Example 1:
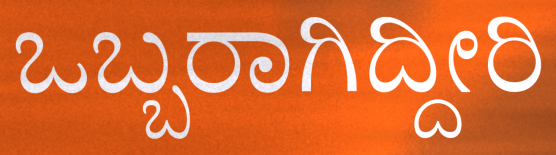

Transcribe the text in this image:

ಒಬ್ಬರಾಗಿದ್ದೀರಿ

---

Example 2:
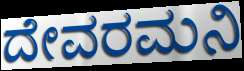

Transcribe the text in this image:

ದೇವರಮನಿ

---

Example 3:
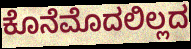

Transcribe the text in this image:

ಕೊನೆಮೊದಲಿಲ್ಲದ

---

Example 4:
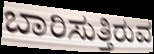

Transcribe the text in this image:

ಬಾರಿಸುತ್ತಿರುವ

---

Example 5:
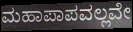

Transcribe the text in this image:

ಮಹಾಪಾಪವಲ್ಲವೇ